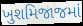
ખુશમિજાજમાં